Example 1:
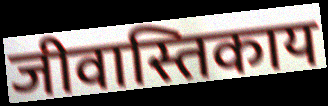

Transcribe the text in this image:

जीवास्तिकाय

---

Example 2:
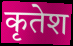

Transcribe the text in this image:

कृतेश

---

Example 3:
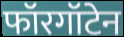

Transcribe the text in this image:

फॉरगॉटेन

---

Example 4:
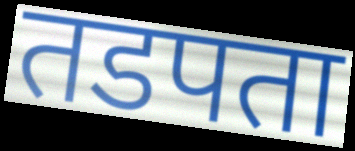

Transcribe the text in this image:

तडपता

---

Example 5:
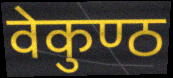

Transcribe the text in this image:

वेकुण्ठ